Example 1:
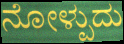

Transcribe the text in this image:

ನೋಳ್ಪುದು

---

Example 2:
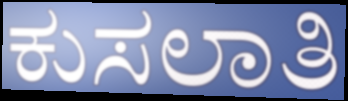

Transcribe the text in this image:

ಕುಸಲಾತಿ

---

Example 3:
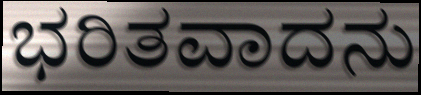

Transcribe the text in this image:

ಭರಿತವಾದನು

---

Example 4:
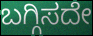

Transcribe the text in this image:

ಬಗ್ಗಿಸದೇ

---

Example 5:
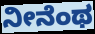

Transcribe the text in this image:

ನೀನೆಂಥ